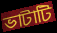
ভাটাটি